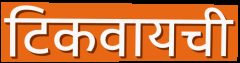
टिकवायची